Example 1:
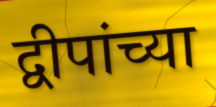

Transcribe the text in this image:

द्वीपांच्या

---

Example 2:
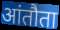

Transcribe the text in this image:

आंतौता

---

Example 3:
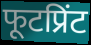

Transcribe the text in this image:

फूटप्रिंट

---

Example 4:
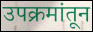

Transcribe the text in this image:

उपक्रमांतून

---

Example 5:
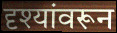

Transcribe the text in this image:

दृश्यांवरून